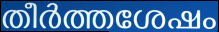
തീർത്തശേഷം